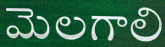
మెలగాలి